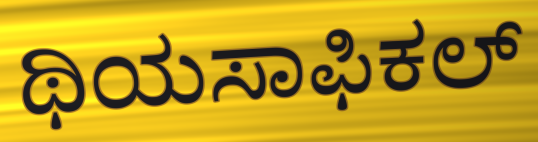
ಥಿಯಸಾಫಿಕಲ್